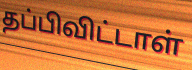
தப்பிவிட்டாள்